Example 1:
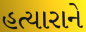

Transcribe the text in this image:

હત્યારાને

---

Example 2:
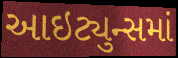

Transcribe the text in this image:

આઇટ્યુન્સમાં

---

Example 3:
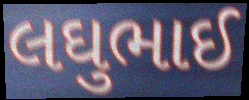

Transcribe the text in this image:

લઘુભાઈ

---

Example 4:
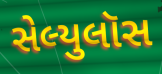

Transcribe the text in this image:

સેલ્યુલૉસ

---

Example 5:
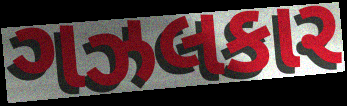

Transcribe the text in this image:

ગઝલકાર